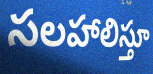
సలహాలిస్తూ